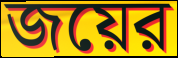
জয়ের